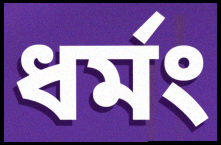
ধর্মং